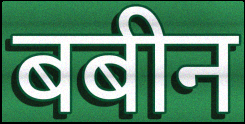
बबीन